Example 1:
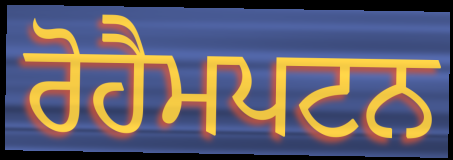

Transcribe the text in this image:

ਰੋਹੈਮਪਟਨ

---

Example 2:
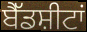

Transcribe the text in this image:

ਬੈੱਡਸ਼ੀਟਾਂ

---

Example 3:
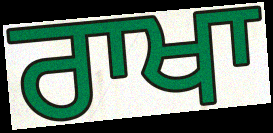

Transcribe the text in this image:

ਰਾਖਾ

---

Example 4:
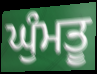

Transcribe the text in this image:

ਘੁੰਮਤੂ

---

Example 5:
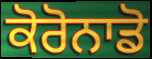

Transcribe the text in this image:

ਕੋਰੋਨਾਡੋ